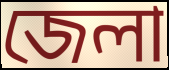
জেলা